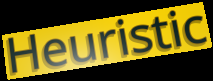
Heuristic